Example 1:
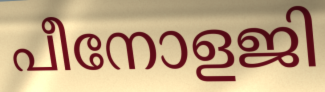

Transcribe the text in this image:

പീനോളജി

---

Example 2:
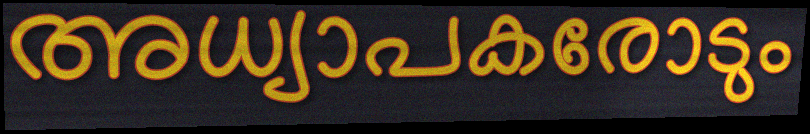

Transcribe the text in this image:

അധ്യാപകരോടും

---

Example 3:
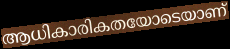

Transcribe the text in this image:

ആധികാരികതയോടെയാണ്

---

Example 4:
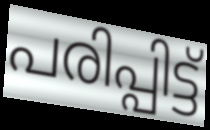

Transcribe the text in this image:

പരിപ്പിട്ട്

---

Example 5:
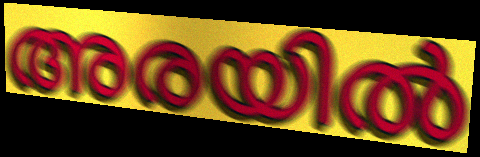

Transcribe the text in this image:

അരയിൽ